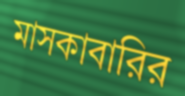
মাসকাবারির